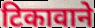
टिकावाने